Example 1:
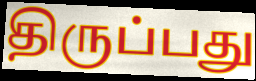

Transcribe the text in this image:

திருப்பது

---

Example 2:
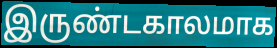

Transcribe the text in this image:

இருண்டகாலமாக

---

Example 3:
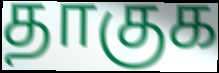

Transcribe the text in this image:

தாகுக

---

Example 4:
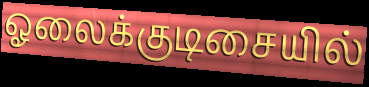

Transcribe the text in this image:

ஓலைக்குடிசையில்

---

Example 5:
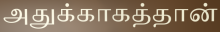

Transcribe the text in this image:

அதுக்காகத்தான்